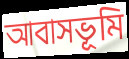
আবাসভূমি